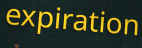
expiration